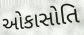
ઓકાસોતિ